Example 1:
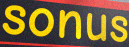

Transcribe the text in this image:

sonus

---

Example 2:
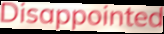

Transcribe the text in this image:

Disappointed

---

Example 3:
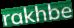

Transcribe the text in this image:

rakhbe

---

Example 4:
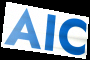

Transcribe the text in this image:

AIC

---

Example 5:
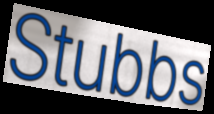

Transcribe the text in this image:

Stubbs